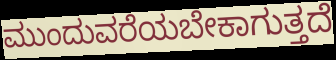
ಮುಂದುವರೆಯಬೇಕಾಗುತ್ತದೆ